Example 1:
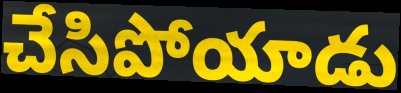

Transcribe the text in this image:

చేసిపోయాడు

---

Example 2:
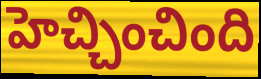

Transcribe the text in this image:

హెచ్చించింది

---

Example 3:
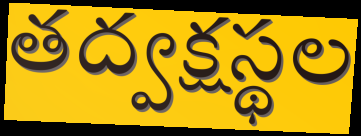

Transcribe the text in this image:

తద్వక్షస్థల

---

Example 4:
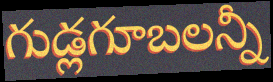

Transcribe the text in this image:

గుడ్లగూబలన్నీ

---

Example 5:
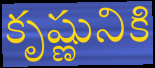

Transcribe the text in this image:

కృష్ణునికి